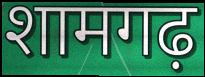
शामगढ़